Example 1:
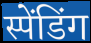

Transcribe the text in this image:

स्पेंडिंग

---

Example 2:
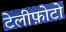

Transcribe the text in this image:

टेलीफ़ोटो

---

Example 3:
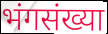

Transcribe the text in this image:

भंगसंख्या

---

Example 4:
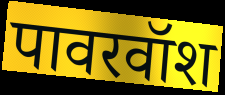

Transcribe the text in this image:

पावरवॉश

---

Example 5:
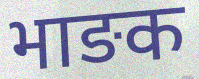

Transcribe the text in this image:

भाङक